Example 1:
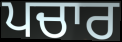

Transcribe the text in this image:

ਪਚਾਰ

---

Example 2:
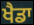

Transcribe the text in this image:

ਖੈਡਾ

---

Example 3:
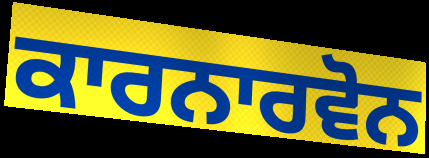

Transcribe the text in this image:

ਕਾਰਨਾਰਵੋਨ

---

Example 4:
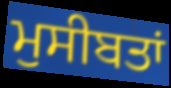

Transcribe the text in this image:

ਮੁਸੀਬਤਾਂ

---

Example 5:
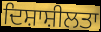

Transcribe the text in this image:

ਦਿਸ਼ਾਸ਼ੀਲਤਾ